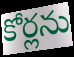
కోర్లను